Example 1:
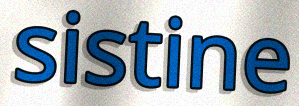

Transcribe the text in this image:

sistine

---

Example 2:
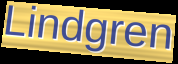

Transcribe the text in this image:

Lindgren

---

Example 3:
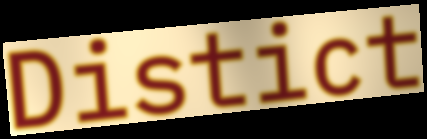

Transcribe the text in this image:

Distict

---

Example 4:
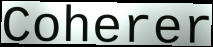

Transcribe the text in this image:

Coherer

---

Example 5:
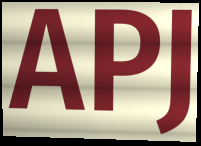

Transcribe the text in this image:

APJ